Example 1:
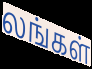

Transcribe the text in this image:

லங்கள்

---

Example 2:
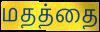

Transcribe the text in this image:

மதத்தை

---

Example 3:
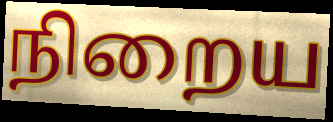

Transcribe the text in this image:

நிறைய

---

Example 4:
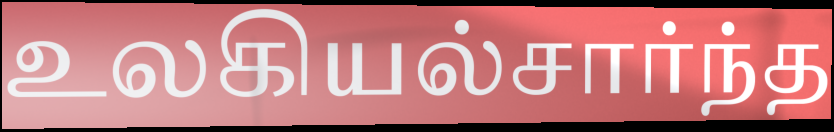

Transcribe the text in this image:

உலகியல்சார்ந்த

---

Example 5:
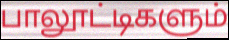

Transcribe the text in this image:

பாலூட்டிகளும்